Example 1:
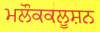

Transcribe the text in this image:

ਮਲੌਕਕਲੂਸ਼ਨ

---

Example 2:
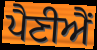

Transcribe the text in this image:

ਪੈਣੀਐਂ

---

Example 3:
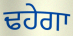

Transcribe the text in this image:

ਢਹੇਗਾ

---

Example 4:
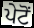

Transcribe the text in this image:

ਪੇਟੋਂ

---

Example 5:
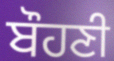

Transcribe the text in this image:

ਬੌਹਣੀ